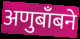
अणुबाँबने